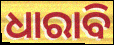
ଧାରାବି